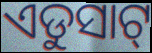
ଏଡୁସାଟ୍